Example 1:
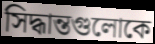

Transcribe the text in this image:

সিদ্ধান্তগুলোকে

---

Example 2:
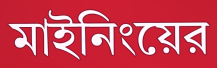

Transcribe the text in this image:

মাইনিংয়ের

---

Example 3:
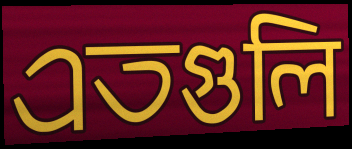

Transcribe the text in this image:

এতগুলি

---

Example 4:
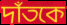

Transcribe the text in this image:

দাঁতকে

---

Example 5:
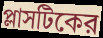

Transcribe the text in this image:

প্লাসটিকের